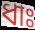
ধাঃ